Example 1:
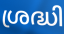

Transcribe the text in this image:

ശ്രദ്ധി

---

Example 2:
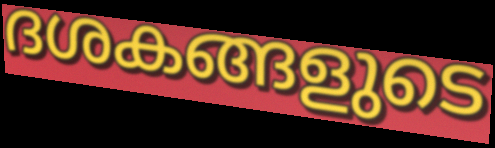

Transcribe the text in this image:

ദശകങ്ങളുടെ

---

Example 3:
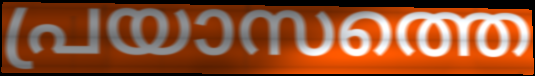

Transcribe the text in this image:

പ്രയാസത്തെ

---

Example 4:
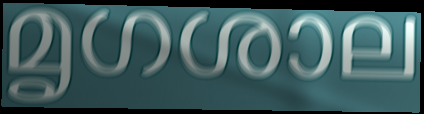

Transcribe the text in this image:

മൃഗശാല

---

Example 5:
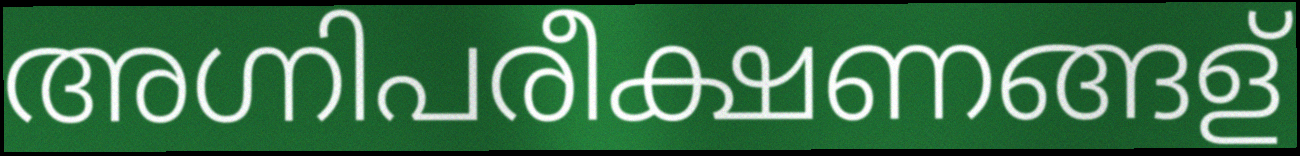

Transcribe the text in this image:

അഗ്നിപരീക്ഷണങ്ങള്